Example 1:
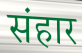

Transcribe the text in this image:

संहार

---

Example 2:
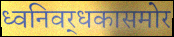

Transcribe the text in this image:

ध्वनिवर्धकासमोर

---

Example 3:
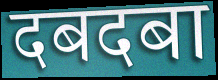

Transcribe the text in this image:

दबदबा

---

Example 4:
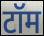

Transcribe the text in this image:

टॉम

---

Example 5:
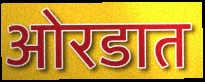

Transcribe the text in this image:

ओरडात